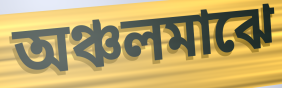
অঞ্চলমাঝে